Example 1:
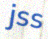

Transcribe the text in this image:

jss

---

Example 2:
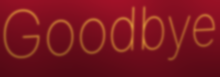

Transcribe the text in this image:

Goodbye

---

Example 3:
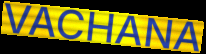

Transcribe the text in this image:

VACHANA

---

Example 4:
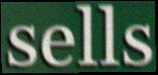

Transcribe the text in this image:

sells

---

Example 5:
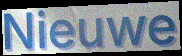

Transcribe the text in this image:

Nieuwe